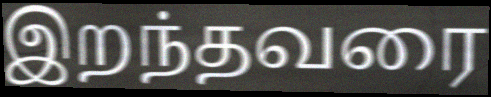
இறந்தவரை